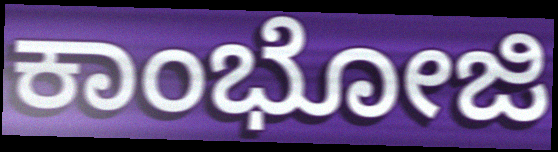
ಕಾಂಭೋಜಿ